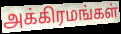
அக்கிரமங்கள்